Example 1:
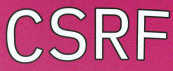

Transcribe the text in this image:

CSRF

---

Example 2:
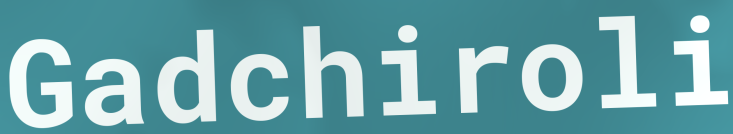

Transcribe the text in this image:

Gadchiroli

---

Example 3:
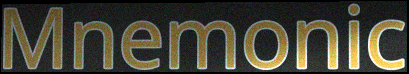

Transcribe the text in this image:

Mnemonic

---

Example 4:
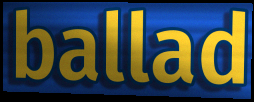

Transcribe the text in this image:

ballad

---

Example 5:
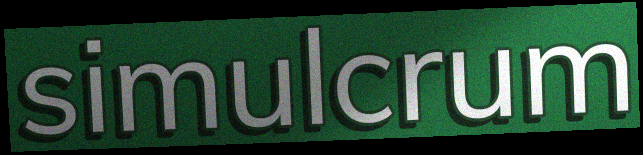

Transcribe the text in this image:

simulcrum